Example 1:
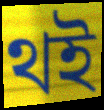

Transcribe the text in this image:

থই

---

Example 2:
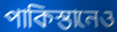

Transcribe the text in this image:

পাকিস্তানেও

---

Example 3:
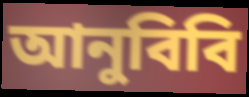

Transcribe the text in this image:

আনুবিবি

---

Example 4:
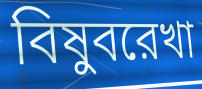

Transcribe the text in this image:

বিষুবরেখা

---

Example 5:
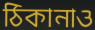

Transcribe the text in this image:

ঠিকানাও